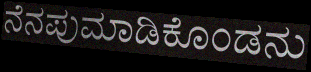
ನೆನಪುಮಾಡಿಕೊಂಡನು